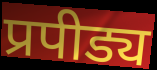
प्रपीड्य